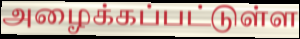
அழைக்கப்பட்டுள்ள